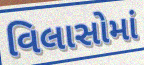
વિલાસોમાં